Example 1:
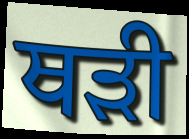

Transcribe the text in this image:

ਥੜੀ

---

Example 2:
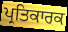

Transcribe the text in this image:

ਪ੍ਰਤਿਕਾਰਕ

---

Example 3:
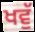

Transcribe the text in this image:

ਖਵੁੱ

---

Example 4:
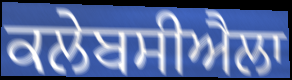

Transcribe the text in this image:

ਕਲੇਬਸੀਐਲਾ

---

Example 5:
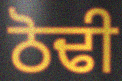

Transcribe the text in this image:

ਠੋਢੀ